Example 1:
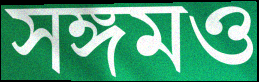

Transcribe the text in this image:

সঙ্গমও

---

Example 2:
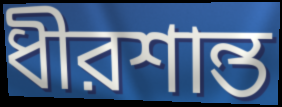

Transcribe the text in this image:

ধীরশান্ত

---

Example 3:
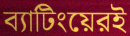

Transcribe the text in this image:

ব্যাটিংয়েরই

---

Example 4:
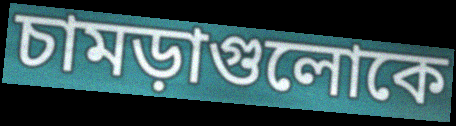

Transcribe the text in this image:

চামড়াগুলোকে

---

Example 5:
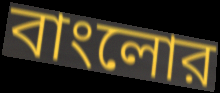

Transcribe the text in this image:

বাংলোর